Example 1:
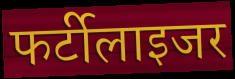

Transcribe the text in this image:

फर्टीलाइजर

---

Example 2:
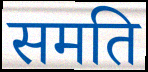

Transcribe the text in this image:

समति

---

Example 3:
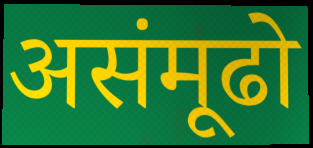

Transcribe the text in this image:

असंमूढो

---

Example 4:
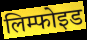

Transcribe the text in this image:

लिम्फोइड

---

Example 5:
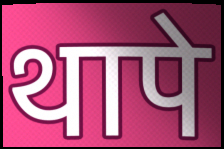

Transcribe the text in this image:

थापे